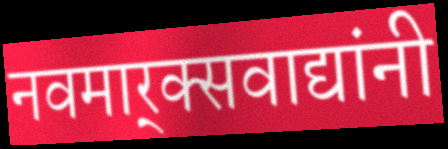
नवमार्क्सवाद्यांनी